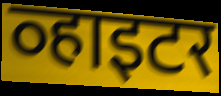
व्हाइटर